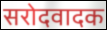
सरोदवादक